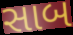
સાબ